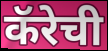
कॅरेची